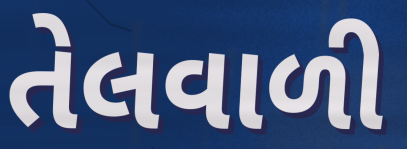
તેલવાળી